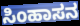
ಸಿಂಹಾಸನ